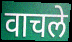
वाचले